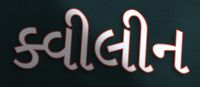
ક્વીલીન